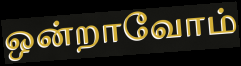
ஒன்றாவோம்